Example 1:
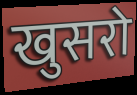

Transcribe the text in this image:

खुसरो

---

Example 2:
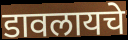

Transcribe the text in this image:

डावलायचे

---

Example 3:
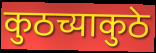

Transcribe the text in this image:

कुठच्याकुठे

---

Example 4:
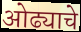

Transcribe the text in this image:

ओढ्याचे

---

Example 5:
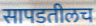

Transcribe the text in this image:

सापडतीलच